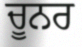
ਚੂਨਰ